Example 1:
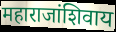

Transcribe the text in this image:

महाराजांशिवाय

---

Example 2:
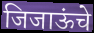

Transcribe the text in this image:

जिजाऊंचे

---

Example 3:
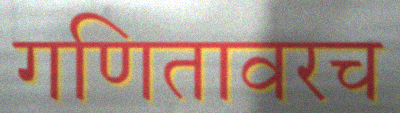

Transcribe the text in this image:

गणितावरच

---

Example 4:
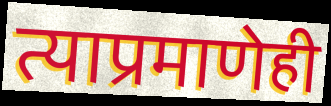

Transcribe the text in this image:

त्याप्रमाणेही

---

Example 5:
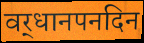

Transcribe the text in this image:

वर्धानपनदिन